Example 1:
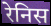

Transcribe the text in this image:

रेनिस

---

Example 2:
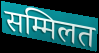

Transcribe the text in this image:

सम्मिलत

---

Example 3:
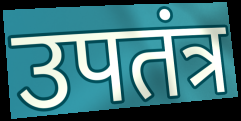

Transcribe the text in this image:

उपतंत्र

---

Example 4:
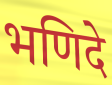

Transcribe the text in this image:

भणिदे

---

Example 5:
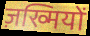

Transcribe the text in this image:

ज़ख्मियों